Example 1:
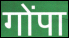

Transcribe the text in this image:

गोंपा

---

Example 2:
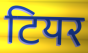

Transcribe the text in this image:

टियर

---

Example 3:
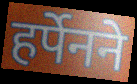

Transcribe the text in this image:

हर्पेनने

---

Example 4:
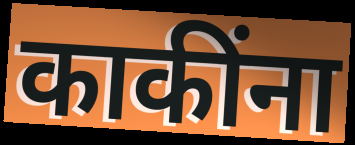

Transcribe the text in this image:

काकींना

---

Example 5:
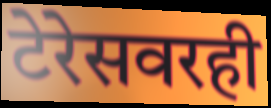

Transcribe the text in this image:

टेरेसवरही